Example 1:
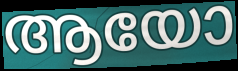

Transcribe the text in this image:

ആയോ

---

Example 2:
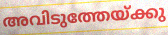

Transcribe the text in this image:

അവിടുത്തേയ്ക്കു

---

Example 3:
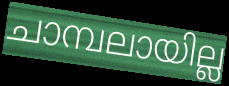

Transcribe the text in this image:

ചാമ്പലായില്ല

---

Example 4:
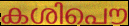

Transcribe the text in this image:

കശിപൌ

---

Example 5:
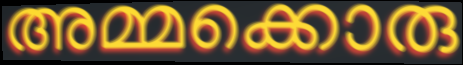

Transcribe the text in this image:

അമ്മക്കൊരു